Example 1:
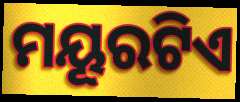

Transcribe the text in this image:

ମୟୂରଟିଏ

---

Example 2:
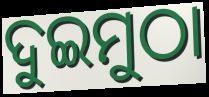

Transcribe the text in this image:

ଦୁଇମୁଠା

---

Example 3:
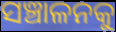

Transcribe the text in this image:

ସଞ୍ଚାଳନକୁ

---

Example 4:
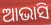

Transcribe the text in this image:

ଆଭାସି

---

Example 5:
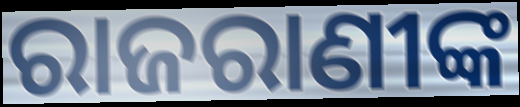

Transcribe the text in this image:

ରାଜରାଣୀଙ୍କ